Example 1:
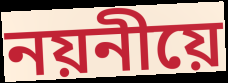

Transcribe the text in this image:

নয়নীয়ে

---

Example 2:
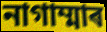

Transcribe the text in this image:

নাগাম্মাৰ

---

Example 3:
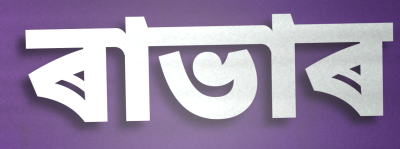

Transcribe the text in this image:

ৰাভাৰ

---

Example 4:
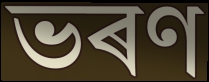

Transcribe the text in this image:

ভৰণ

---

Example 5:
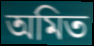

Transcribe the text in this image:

অমিত